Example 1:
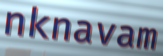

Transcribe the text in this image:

nknavam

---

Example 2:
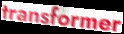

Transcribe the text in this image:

transformer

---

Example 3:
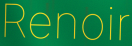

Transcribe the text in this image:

Renoir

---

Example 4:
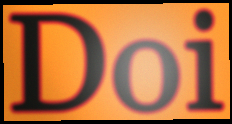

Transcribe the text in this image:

Doi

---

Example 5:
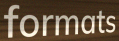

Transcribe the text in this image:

formats